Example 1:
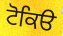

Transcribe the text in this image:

ਟੋਕਿੳ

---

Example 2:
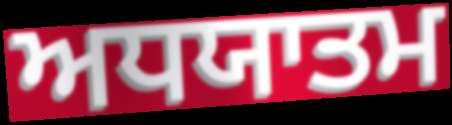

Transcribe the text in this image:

ਅਧਯਾਤਮ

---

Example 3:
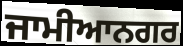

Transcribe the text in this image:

ਜਾਮੀਆਨਗਰ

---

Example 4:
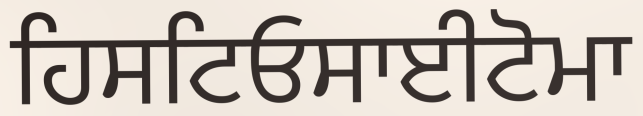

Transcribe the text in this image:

ਹਿਸਟਿਓਸਾਈਟੋਮਾ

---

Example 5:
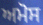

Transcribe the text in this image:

ਅਮੋਸ